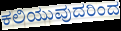
ಕಲಿಯುವುದರಿಂದ